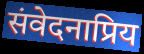
संवेदनाप्रिय